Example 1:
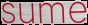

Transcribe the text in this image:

sume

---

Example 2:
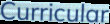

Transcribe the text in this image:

Curricular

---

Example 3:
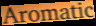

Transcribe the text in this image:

Aromatic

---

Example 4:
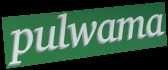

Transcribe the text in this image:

pulwama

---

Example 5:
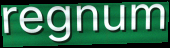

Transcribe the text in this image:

regnum